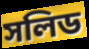
সলিড